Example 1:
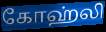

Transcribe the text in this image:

கோஹ்லி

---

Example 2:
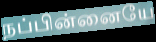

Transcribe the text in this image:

நப்பின்னையே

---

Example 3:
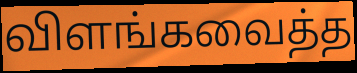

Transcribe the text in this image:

விளங்கவைத்த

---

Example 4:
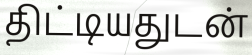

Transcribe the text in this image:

திட்டியதுடன்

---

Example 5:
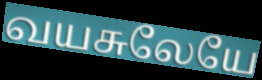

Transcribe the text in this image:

வயசுலேயே